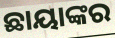
ଛାୟାଙ୍କର